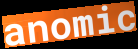
anomic